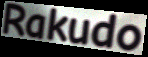
Rakudo